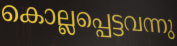
കൊല്ലപ്പെട്ടവന്നു